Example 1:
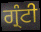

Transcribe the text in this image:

ਗ੍ਰੰਟੀ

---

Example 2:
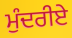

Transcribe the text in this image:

ਮੁੰਦਰੀਏ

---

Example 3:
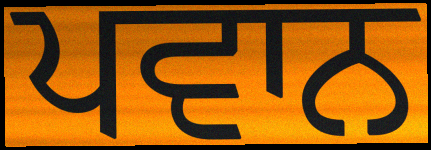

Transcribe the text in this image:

ਪਵਾਨ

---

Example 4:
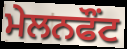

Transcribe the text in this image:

ਮੇਲਨਫੌਂਟ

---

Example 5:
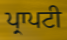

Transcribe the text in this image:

ਪ੍ਰਾਪਟੀ